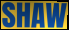
SHAW